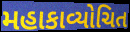
મહાકાવ્યોચિત